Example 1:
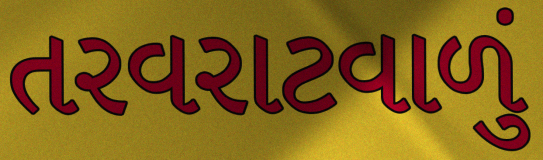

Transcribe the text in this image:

તરવરાટવાળું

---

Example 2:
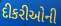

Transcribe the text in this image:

દીકરીઓની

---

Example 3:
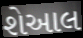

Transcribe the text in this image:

શેઆલ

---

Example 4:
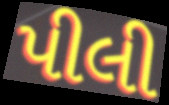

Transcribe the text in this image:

પીલી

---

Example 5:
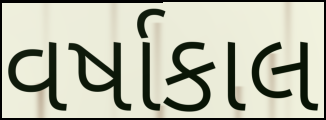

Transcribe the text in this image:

વર્ષાકાલ